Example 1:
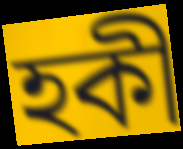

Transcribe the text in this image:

হকী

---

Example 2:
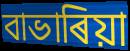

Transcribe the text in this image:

বাভাৰিয়া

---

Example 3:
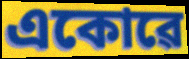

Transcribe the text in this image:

একোৱে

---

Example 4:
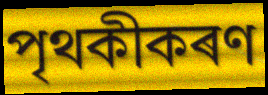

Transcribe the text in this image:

পৃথকীকৰণ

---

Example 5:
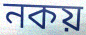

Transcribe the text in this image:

নকয়